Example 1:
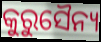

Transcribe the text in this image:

କୁରୁସୈନ୍ୟ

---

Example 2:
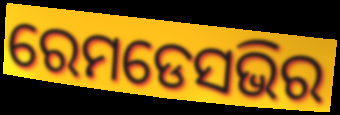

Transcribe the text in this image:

ରେମଡେସଭିର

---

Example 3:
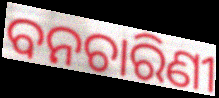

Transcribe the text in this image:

ବନଚାରିଣୀ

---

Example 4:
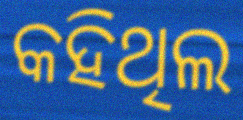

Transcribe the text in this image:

କହିଥିଲ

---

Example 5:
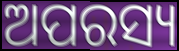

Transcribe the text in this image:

ଅପରସ୍ୟ